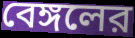
বেঙ্গলের